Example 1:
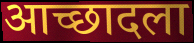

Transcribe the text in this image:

आच्छादला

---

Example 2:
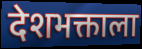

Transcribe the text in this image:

देशभक्ताला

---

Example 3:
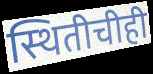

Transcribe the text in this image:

स्थितीचीही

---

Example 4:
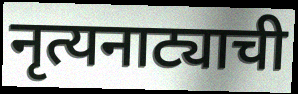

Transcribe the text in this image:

नृत्यनाट्याची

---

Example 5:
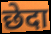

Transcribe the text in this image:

छेदा